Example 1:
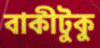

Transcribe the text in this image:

বাকীটুকু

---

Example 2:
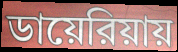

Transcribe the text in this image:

ডায়েরিয়ায়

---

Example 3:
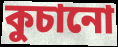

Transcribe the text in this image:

কুচানো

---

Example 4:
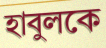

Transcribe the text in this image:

হাবুলকে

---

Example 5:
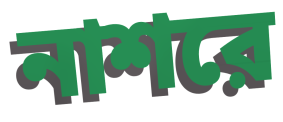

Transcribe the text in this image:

নাশরে